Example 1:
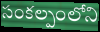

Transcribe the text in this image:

సంకల్పంలోని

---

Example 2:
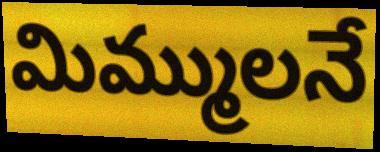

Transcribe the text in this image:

మిమ్ములనే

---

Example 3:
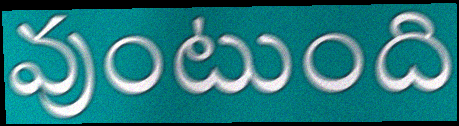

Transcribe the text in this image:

వుంటుంది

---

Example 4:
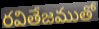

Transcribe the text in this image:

రవితేజముతో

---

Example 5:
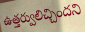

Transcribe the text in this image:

ఉత్తర్వులిచ్చిందని